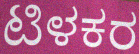
ಟಿಳಕರ